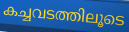
കച്ചവടത്തിലൂടെ